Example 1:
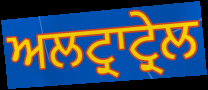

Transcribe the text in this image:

ਅਲਟ੍ਰਾਟ੍ਰੇਲ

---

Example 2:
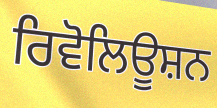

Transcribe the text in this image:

ਰਿਵੋਲਿਊਸ਼ਨ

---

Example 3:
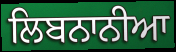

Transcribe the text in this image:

ਲਿਬਨਾਨੀਆ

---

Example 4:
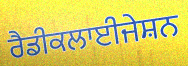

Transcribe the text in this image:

ਰੈਡੀਕਲਾਈਜੇਸ਼ਨ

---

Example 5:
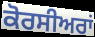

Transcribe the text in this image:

ਕੋਰਸੀਅਰਾਂ